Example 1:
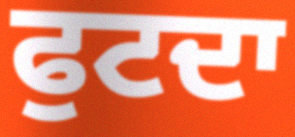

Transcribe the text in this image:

ਫੁਟਦਾ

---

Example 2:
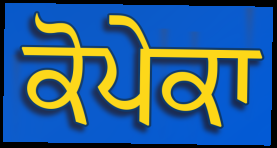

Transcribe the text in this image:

ਕੋਪੇਕਾ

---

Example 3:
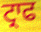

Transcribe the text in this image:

ਟ੍ਰਾਫ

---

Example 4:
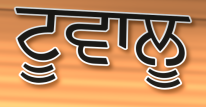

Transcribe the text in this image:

ਟੂਵਾਲੂ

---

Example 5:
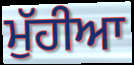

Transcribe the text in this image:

ਮੁੱਹੀਆ